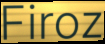
Firoz